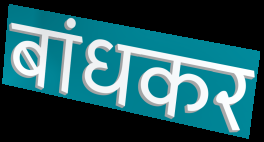
बांधकर